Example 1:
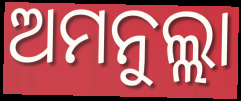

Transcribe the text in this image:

ଅମନୁଲ୍ଲା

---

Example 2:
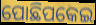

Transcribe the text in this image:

ପୋଛିପକେଇ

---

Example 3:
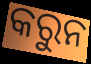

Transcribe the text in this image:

କରୁନ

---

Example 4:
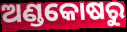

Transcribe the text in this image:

ଅଣ୍ଡକୋଷରୁ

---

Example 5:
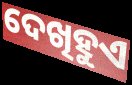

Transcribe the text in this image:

ଦେଖିହୁଏ